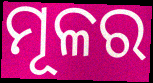
ମୂଳର